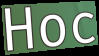
Hoc